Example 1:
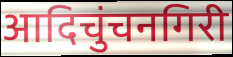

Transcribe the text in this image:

आदिचुंचनगिरी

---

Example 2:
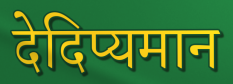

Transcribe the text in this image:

देदिप्यमान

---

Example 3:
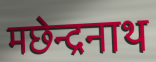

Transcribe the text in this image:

मछेन्द्रनाथ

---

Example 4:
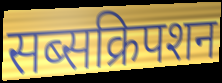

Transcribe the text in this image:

सब्सक्रिपशन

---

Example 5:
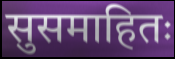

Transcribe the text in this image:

सुसमाहितः